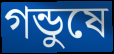
গন্ডুষে